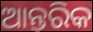
ଆନ୍ତରିକ